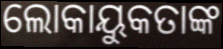
ଲୋକାୟୁକତାଙ୍କ